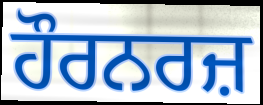
ਹੌਰਨਰਜ਼